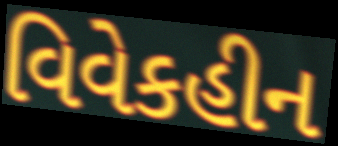
વિવેકહીન